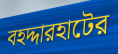
বহদ্দারহাটের